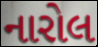
નારોલ